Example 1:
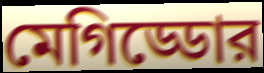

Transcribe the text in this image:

মেগিড্ডোর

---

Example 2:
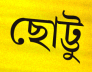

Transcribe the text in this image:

ছোট্টু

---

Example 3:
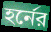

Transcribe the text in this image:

হর্নের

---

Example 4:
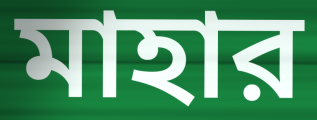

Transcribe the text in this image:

মাহার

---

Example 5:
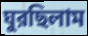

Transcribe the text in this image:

ঘুরছিলাম